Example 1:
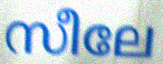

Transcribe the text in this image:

സീലേ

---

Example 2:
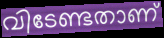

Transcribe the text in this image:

വിടേണ്ടതാണ്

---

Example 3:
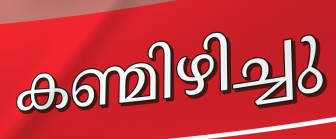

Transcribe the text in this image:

കണ്മിഴിച്ചു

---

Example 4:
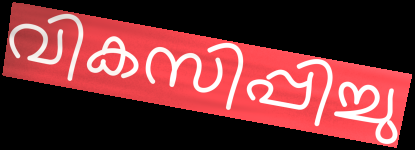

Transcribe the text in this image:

വികസിപ്പിച്ചു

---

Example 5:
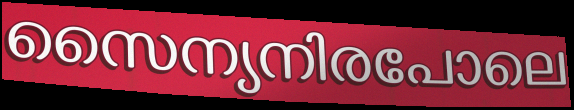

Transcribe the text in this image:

സൈന്യനിരപോലെ